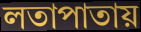
লতাপাতায়